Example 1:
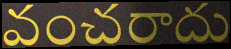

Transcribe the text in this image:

వంచరాదు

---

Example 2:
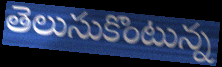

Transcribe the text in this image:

తెలుసుకొంటున్న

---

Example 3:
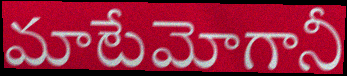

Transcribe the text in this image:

మాటేమోగానీ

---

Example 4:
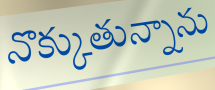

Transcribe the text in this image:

నొక్కుతున్నాను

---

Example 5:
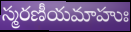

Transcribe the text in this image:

స్మరణీయమాహుః